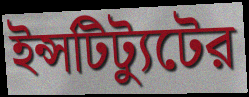
ইন্সটিট্যুটের